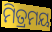
ମିତ୍ରମୟ